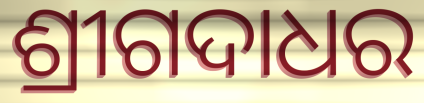
ଶ୍ରୀଗଦାଧର